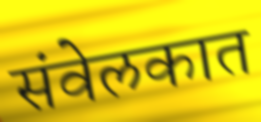
संवेलकात